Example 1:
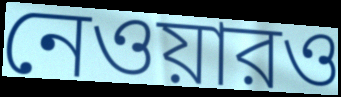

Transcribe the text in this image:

নেওয়ারও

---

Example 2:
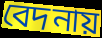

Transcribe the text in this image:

বেদনায়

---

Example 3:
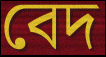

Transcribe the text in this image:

বেদ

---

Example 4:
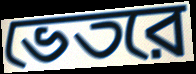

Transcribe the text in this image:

ভেতরে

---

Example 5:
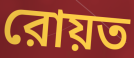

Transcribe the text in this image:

রোয়ত